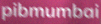
pibmumbai